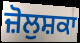
ਜ਼ੋਲੁਸ਼ਕਾ